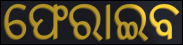
ଫେରାଇବ